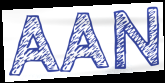
AAN